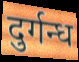
दुर्गन्‍ध